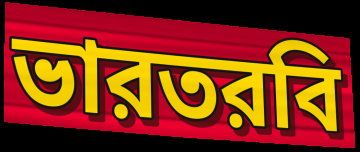
ভারতরবি